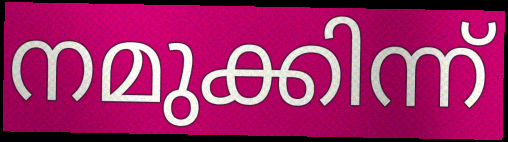
നമുക്കിന്ന്